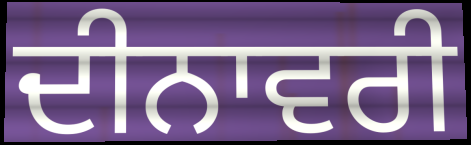
ਦੀਨਾਵਰੀ